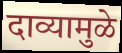
दाव्यामुळे